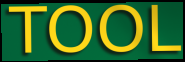
TOOL